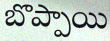
బొప్పాయి